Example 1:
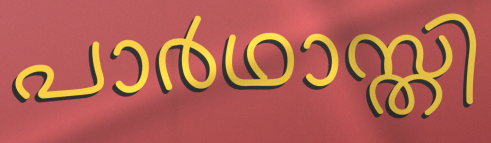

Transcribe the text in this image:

പാർഥാസ്തി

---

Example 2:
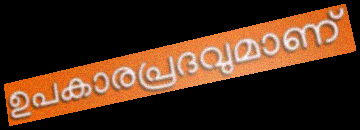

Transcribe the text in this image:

ഉപകാരപ്രദവുമാണ്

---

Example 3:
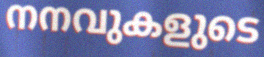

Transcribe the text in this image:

നനവുകളുടെ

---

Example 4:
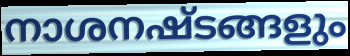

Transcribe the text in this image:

നാശനഷ്ടങ്ങളും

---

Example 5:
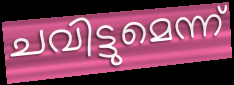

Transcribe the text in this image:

ചവിട്ടുമെന്ന്